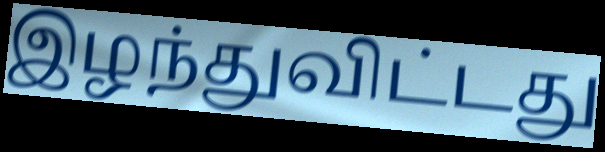
இழந்துவிட்டது